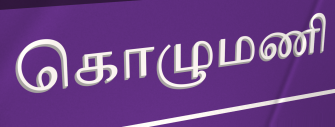
கொழுமணி